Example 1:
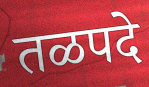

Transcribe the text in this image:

तळपदे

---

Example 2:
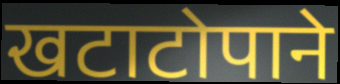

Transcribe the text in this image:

खटाटोपाने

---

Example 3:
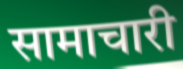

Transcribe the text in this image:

सामाचारी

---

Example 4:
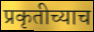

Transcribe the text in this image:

प्रकृतीच्याच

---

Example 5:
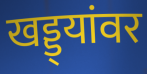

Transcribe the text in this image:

खड्ड्यांवर